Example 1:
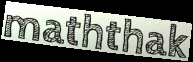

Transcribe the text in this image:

maththak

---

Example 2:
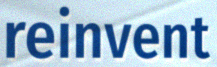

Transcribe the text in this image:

reinvent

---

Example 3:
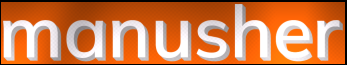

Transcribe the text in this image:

manusher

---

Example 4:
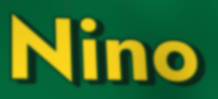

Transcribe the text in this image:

Nino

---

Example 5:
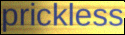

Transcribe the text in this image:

prickless